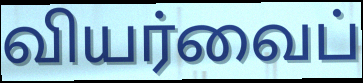
வியர்வைப்